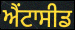
ਐਂਟਾਸੀਡ